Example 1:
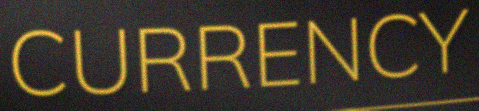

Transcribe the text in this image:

CURRENCY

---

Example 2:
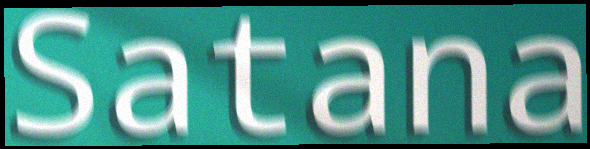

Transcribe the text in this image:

Satana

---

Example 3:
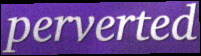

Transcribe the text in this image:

perverted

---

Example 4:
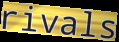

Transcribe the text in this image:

rivals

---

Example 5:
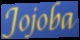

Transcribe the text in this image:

Jojoba